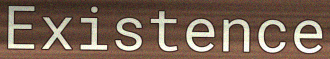
Existence